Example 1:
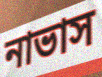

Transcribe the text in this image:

নাভাস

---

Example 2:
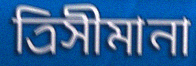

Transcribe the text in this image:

ত্রিসীমানা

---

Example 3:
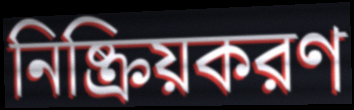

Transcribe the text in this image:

নিষ্ক্রিয়করণ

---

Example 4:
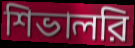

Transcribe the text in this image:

শিভালরি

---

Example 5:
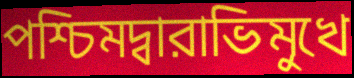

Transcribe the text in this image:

পশ্চিমদ্বারাভিমুখে